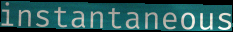
instantaneous